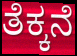
ತೆಕ್ಕನೆ